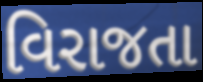
વિરાજતા